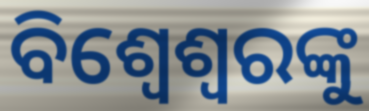
ବିଶ୍ୱେଶ୍ୱରଙ୍କୁ